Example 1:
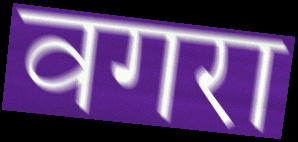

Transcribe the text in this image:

वगरा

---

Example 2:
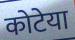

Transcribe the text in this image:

कोटेया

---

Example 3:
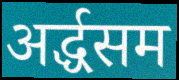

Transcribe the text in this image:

अर्द्धसम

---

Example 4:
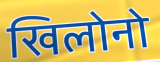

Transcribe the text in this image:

खिलोनो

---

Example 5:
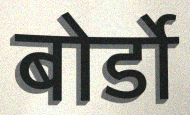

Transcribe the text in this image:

बोर्डो